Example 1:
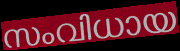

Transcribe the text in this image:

സംവിധായ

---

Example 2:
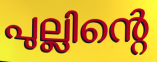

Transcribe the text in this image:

പുല്ലിന്റെ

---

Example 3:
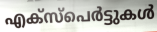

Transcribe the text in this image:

എക്സ്പെർട്ടുകൾ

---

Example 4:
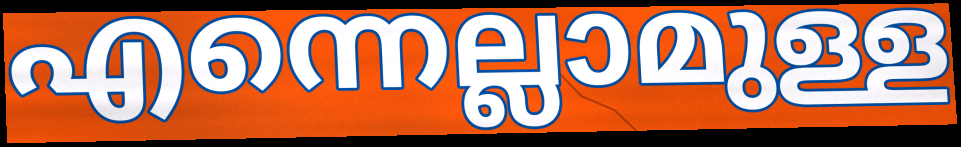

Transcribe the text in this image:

എന്നെല്ലാമുള്ള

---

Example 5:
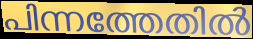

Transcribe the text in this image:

പിന്നത്തേതിൽ